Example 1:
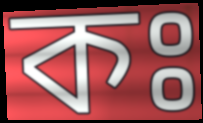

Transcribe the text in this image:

কঃ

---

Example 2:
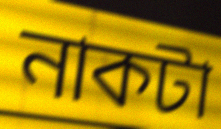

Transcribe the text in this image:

নাকটা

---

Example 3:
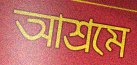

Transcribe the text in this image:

আশ্রমে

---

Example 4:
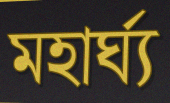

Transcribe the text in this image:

মহার্ঘ্য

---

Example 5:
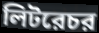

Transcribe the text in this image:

লিটরেচর